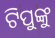
ଟିପୁଙ୍କୁ